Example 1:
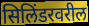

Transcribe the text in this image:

सिलिंडरवरील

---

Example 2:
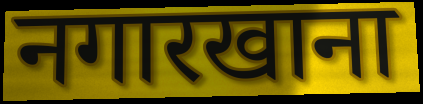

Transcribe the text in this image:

नगारखाना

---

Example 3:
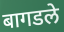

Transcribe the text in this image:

बागडले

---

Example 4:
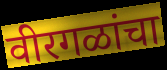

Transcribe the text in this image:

वीरगळांचा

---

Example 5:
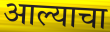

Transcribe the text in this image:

आल्‍याचा